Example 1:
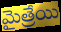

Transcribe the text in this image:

మైత్రేయి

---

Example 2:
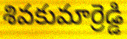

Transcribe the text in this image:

శివకుమార్రెడ్డి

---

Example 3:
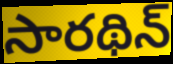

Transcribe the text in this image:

సారథిన్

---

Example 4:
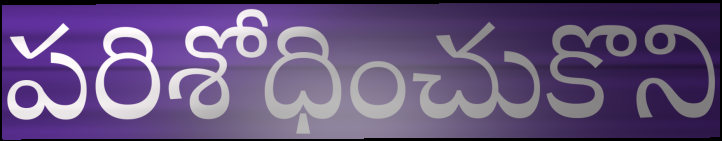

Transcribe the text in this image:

పరిశోధించుకొని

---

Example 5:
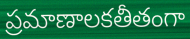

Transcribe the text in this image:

ప్రమాణాలకతీతంగా